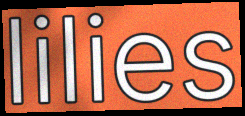
lilies